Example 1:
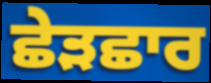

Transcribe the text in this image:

ਛੇੜਛਾਰ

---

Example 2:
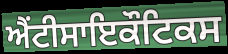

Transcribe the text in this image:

ਐਂਟੀਸਾਇਕੌਟਿਕਸ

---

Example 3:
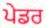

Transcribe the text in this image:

ਪੇਡਰ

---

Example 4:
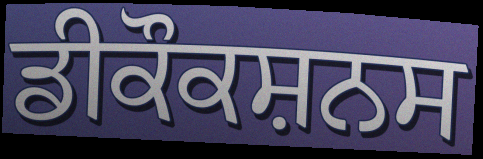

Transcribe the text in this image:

ਡੀਕੌਕਸ਼ਨਸ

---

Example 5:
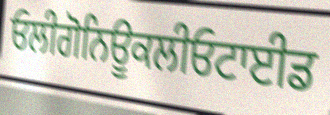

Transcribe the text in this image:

ਓਲੀਗੋਨਿਊਕਲੀਓਟਾਈਡ